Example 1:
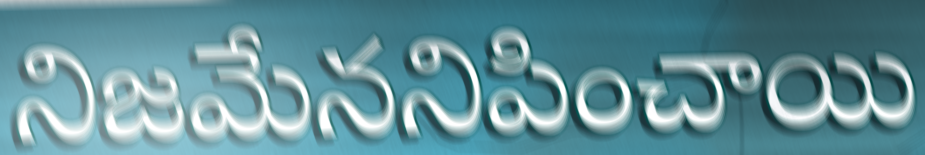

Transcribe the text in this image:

నిజమేననిపించాయి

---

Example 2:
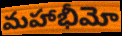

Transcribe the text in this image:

మహాభీమో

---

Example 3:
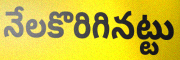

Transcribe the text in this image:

నేలకొరిగినట్టు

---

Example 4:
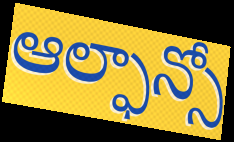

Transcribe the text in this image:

ఆల్ఫాన్సో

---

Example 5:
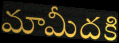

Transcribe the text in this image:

మామీదకి